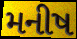
મનીષ